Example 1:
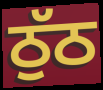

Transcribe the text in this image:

ਠੁੱਠ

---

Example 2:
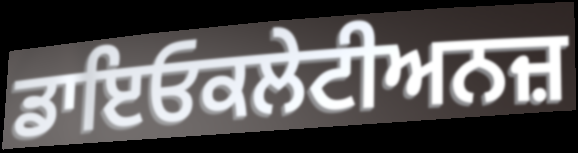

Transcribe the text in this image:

ਡਾਇਓਕਲੇਟੀਅਨਜ਼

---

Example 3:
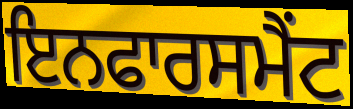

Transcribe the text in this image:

ਇਨਫਾਰਸਮੈਂਟ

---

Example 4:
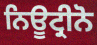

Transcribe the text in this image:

ਨਿਊਟ੍ਰੀਨੋ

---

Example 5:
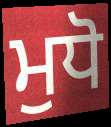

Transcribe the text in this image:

ਮੁਧੋ